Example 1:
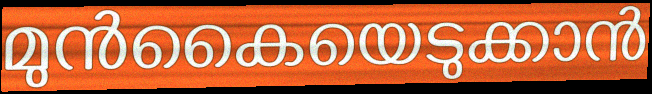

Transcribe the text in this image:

മുൻകൈയെടുക്കാൻ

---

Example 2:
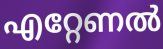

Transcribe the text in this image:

എറ്റേണൽ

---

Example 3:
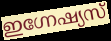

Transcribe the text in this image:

ഇഗ്നേഷ്യസ്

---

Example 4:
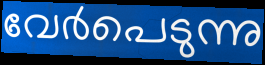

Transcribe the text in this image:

വേർപെടുന്നു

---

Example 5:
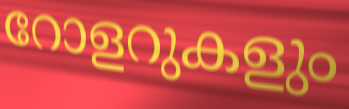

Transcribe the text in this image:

റോളറുകളും